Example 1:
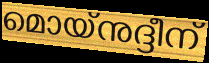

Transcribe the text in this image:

മൊയ്നുദ്ദീന്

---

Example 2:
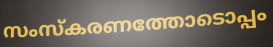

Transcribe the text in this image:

സംസ്കരണത്തോടൊപ്പം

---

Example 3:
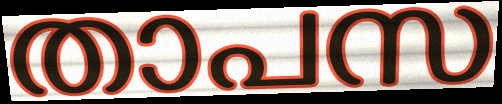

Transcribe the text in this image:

താപസ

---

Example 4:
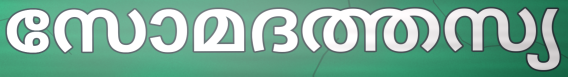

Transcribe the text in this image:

സോമദത്തസ്യ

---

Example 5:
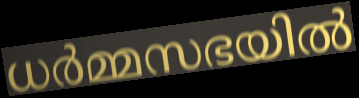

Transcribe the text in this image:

ധർമ്മസഭയിൽ